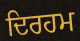
ਦਿਰਹਮ